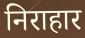
निराहार